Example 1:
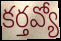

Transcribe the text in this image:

కర్తవ్యో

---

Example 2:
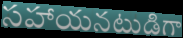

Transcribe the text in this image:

సహాయనటుడిగా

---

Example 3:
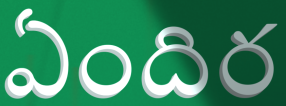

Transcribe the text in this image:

ఏందిర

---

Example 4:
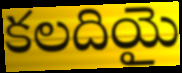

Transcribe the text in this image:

కలదియై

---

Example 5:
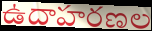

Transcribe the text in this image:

ఉదాహరణల